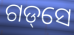
ଗଡ୍‌ସେ